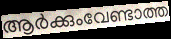
ആർക്കുംവേണ്ടാത്ത